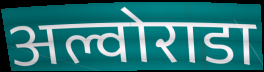
अल्वोराडा